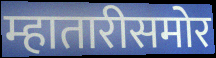
म्हातारीसमोर